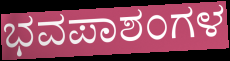
ಭವಪಾಶಂಗಳ